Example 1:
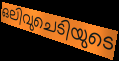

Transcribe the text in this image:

ഒലിവുചെടിയുടെ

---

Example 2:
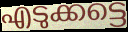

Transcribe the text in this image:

എടുക്കട്ടെ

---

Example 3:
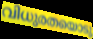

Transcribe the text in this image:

വിധുരതയൊടു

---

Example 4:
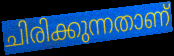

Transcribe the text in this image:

ചിരിക്കുന്നതാണ്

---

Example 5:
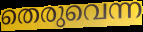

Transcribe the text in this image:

തെരുവെന്ന